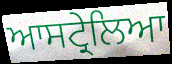
ਆਸਟ੍ਰੇਲਿਆ